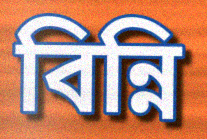
বিন্নি